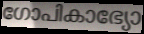
ഗോപികാഭ്യോ